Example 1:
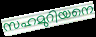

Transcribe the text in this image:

സഹമുറിയനെ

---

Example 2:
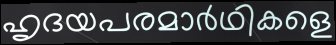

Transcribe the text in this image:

ഹൃദയപരമാർഥികളെ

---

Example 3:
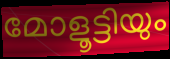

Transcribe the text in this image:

മോളൂട്ടിയും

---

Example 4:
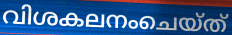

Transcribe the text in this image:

വിശകലനംചെയ്ത്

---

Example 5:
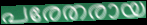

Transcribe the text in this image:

പരേതരായ